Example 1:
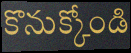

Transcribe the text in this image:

కొనుక్కోండి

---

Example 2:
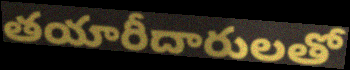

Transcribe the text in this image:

తయారీదారులతో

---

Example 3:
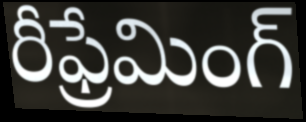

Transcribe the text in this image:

రీఫ్రేమింగ్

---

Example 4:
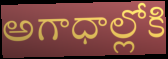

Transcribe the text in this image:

అగాధాల్లోకి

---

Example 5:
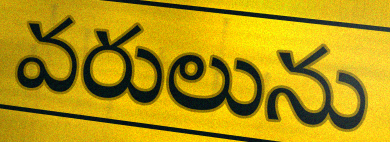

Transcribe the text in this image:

వరులును